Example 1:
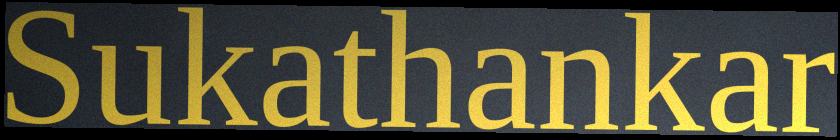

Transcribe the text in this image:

Sukathankar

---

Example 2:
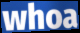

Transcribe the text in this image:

whoa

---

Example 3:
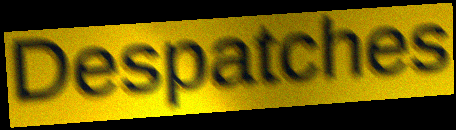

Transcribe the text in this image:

Despatches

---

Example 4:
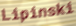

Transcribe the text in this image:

Lipinski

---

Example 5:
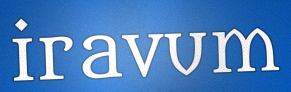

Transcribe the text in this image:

iravum